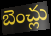
బెంచ్లు